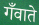
गँवाते